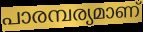
പാരമ്പര്യമാണ്